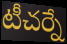
టీచర్నే